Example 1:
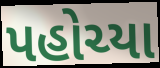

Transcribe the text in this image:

પહોચ્યા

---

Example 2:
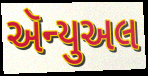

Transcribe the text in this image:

ઍન્યુઅલ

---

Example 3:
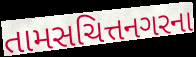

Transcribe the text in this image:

તામસચિત્તનગરના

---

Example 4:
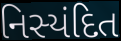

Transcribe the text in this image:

નિસ્યંદિત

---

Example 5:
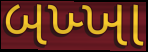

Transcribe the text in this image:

બખ્ખા